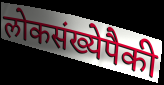
लोकसंख्येपैकी